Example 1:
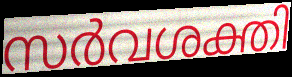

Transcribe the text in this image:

സർവശക്തി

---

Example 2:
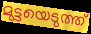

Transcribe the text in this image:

മുട്ടയെടുത്ത്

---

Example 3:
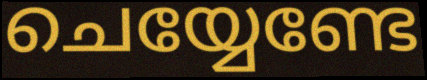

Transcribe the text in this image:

ചെയ്യേണ്ടേ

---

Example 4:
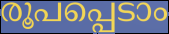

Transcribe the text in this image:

രൂപപ്പെടാം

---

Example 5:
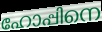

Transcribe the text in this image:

ഹോപ്പിനെ